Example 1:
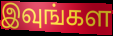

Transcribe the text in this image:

இவுங்கள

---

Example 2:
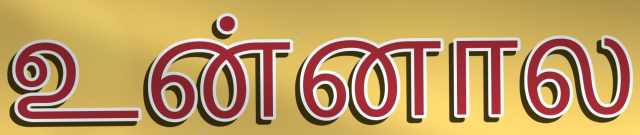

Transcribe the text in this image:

உன்னால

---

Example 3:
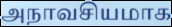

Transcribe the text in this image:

அநாவசியமாக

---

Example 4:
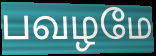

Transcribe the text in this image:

பவழமே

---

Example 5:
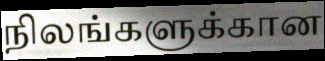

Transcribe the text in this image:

நிலங்களுக்கான